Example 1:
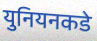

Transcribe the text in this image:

युनियनकडे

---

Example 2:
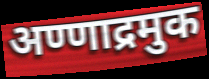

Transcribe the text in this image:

अण्णाद्रमुक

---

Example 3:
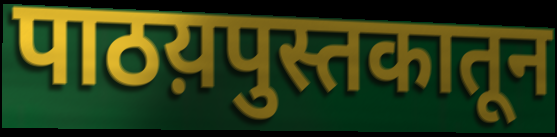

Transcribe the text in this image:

पाठय़पुस्तकातून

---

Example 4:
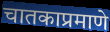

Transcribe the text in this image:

चातकाप्रमाणे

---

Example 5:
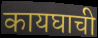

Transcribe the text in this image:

कायघाची